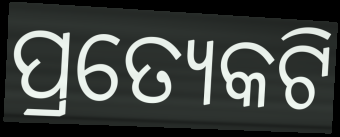
ପ୍ରତ୍ୟେକଟି